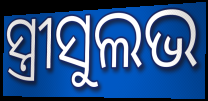
ସ୍ତ୍ରୀସୁଲଭ